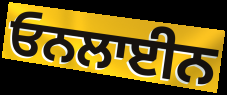
ਓਨਲਾਈਨ